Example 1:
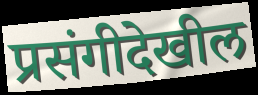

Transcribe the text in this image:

प्रसंगीदेखील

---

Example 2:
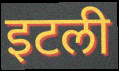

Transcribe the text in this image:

इटली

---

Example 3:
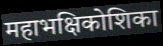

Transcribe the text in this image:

महाभक्षिकोशिका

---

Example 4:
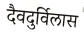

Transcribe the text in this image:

दैवदुर्विलास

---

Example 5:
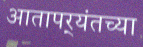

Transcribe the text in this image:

आतापर्यंतच्या